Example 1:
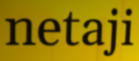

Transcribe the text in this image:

netaji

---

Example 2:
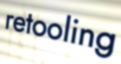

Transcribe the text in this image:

retooling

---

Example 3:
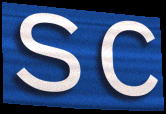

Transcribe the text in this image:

sc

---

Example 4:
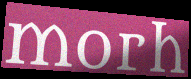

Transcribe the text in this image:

morh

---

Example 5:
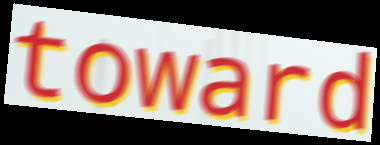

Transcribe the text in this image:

toward